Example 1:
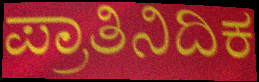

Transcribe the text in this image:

ಪ್ರಾತಿನಿದಿಕ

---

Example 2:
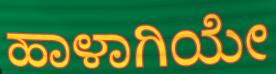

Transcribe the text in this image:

ಹಾಳಾಗಿಯೇ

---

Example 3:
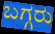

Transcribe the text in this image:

ಬಗ್ಗರು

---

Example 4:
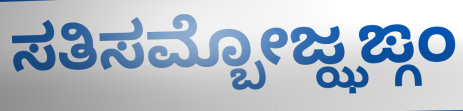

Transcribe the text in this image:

ಸತಿಸಮ್ಬೋಜ್ಝಙ್ಗಂ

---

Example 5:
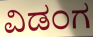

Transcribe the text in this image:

ವಿಡಂಗ